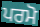
ਪਰਮੋ